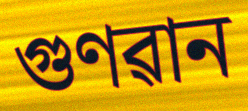
গুণৱান